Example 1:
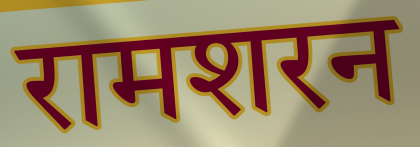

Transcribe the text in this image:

रामशरन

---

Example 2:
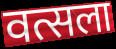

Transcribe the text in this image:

वत्सला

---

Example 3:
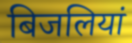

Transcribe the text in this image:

बिजलियां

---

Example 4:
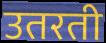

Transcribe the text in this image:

उतरती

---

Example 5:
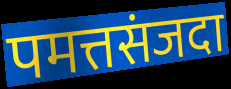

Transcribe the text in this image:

पमत्तसंजदा